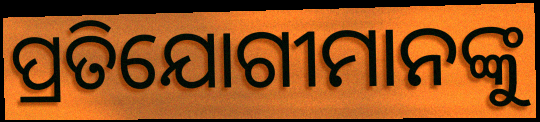
ପ୍ରତିଯୋଗୀମାନଙ୍କୁ